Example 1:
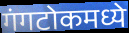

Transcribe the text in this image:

गंगटोकमध्ये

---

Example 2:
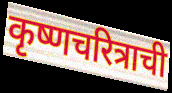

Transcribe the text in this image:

कृष्णचरित्राची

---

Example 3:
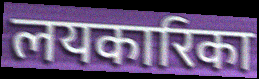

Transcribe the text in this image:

लयकारिका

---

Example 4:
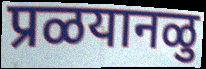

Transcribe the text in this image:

प्रळयानळु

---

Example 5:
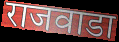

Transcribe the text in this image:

राजवाडा